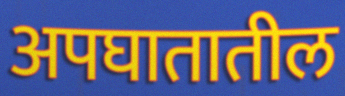
अपघातातील